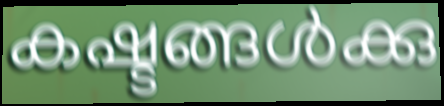
കഷ്ടങ്ങൾക്കു